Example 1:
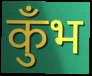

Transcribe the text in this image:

कुँभ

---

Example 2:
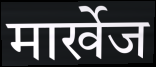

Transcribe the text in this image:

मार्खेज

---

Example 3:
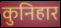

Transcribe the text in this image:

कुनिहार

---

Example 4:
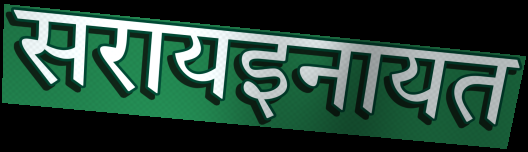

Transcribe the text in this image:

सरायइनायत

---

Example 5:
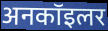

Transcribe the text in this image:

अनकॉइलर